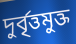
দুর্বৃত্তমুক্ত